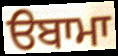
ੳਬਾਮਾ